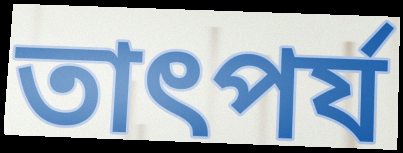
তাৎপৰ্য